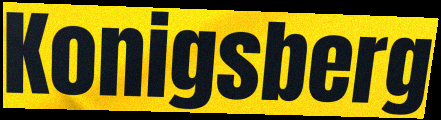
Konigsberg